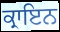
ਕ੍ਰਾਇਨ